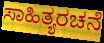
ಸಾಹಿತ್ಯರಚನೆ